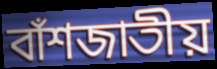
বাঁশজাতীয়